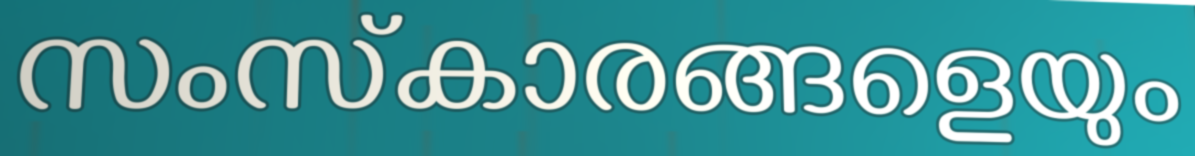
സംസ്‌കാരങ്ങളെയും